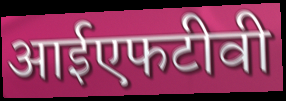
आईएफटीवी